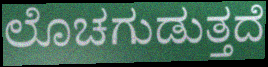
ಲೊಚಗುಡುತ್ತದೆ